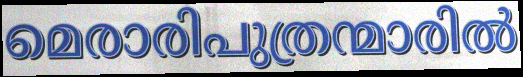
മെരാരിപുത്രന്മാരിൽ